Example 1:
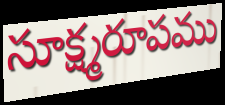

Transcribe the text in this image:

సూక్ష్మరూపము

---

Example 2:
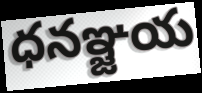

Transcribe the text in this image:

ధనఞ్జయ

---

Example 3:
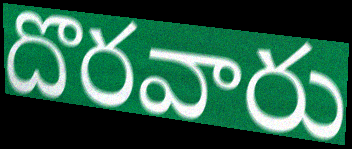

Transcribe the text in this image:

దొరవారు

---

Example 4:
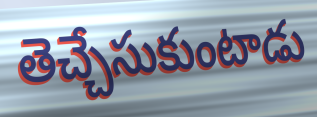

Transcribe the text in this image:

తెచ్చేసుకుంటాడు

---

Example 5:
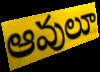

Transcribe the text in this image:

ఆవులూ